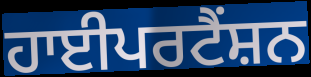
ਹਾਈਪਰਟੈਂਸ਼ਨ